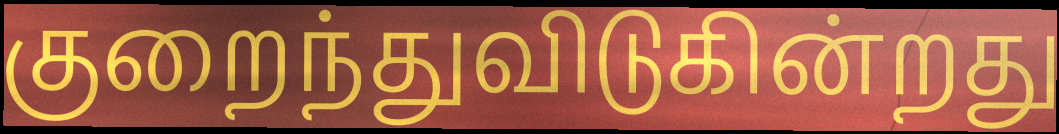
குறைந்துவிடுகின்றது